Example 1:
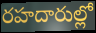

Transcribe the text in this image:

రహదారుల్లో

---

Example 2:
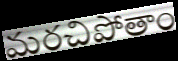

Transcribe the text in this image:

మరచిపోతాం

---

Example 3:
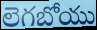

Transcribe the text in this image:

లెగబోయు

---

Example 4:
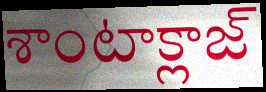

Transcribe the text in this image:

శాంటాక్లాజ్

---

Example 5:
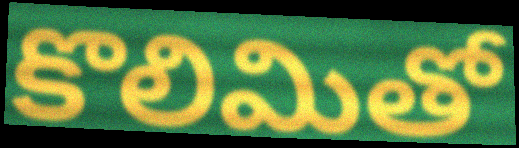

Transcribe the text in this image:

కొలిమితో